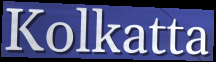
Kolkatta